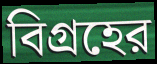
বিগ্রহের